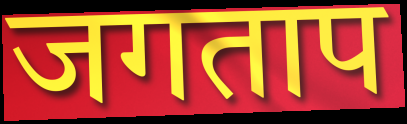
जगताप